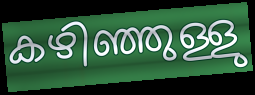
കഴിഞ്ഞുള്ളു